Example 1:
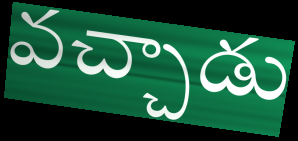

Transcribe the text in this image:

వచ్చాడు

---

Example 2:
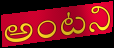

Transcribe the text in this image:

అంటని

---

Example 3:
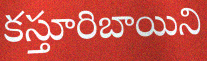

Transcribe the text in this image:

కస్తూరిబాయిని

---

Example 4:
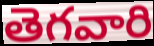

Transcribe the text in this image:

తెగవారి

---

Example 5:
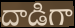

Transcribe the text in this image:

దాడిగా